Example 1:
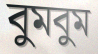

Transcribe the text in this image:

বুমবুম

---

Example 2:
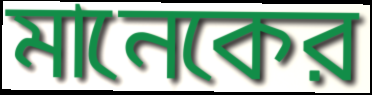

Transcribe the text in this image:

মানেকের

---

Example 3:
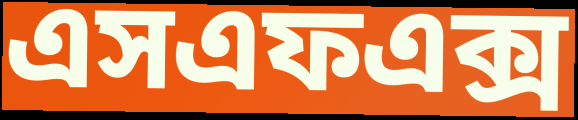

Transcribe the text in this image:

এসএফএক্স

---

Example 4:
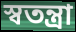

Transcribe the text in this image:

স্বতন্ত্রা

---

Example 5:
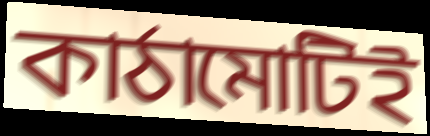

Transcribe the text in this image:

কাঠামোটিই